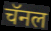
चॅनल